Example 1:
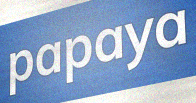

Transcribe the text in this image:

papaya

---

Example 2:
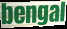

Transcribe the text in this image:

bengal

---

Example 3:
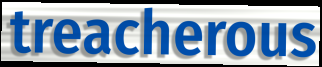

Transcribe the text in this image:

treacherous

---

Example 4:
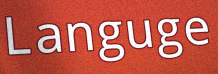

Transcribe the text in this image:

Languge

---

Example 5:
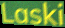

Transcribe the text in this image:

Laski